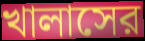
খালাসের